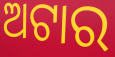
ଅଟାର